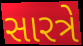
સારત્રે